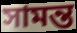
সামন্ত